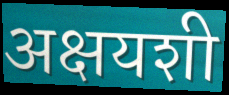
अक्षयशी